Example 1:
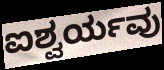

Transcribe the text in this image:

ಐಶ್ವರ್ಯವು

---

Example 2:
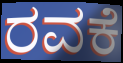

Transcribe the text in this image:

ರವಕೆ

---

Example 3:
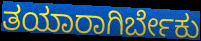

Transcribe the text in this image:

ತಯಾರಾಗಿರ್ಬೇಕು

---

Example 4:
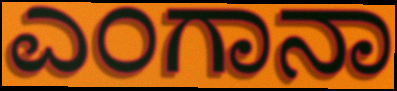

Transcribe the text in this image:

ಎಂಗಾನಾ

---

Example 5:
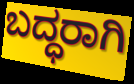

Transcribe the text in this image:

ಬದ್ಧರಾಗಿ